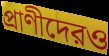
প্রাণীদেরও